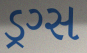
ડ્રગ્સ